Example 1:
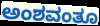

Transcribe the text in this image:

ಅಂಶವಂತೂ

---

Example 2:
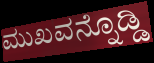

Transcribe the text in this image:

ಮುಖವನ್ನೊಡ್ಡಿ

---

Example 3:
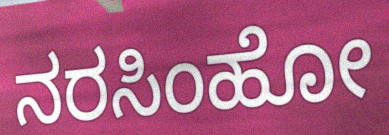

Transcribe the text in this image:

ನರಸಿಂಹೋ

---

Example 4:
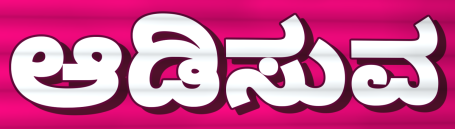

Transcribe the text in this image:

ಆಡಿಸುವ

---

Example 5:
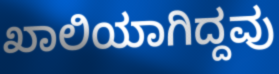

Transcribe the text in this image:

ಖಾಲಿಯಾಗಿದ್ದವು